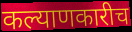
कल्याणकारीच